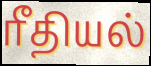
ரீதியல்